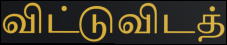
விட்டுவிடத்